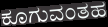
ಕೂಗುವಂತಹ